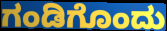
ಗಂಡಿಗೊಂದು